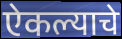
ऐकल्याचे